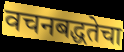
वचनबद्धतेचा